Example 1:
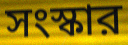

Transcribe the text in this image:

সংস্কার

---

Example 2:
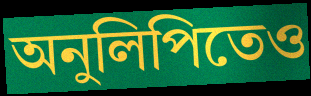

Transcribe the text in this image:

অনুলিপিতেও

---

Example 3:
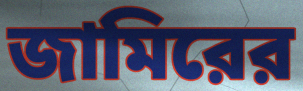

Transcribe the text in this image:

জামিরের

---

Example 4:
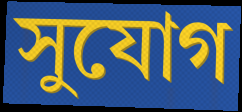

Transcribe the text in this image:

সুযোগ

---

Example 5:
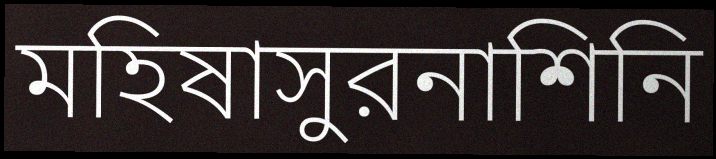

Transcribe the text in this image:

মহিষাসুরনাশিনি